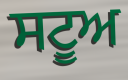
ਸਟੂਅ